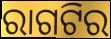
ରାଗଟିର